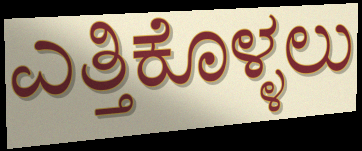
ಎತ್ತಿಕೊಳ್ಳಲು